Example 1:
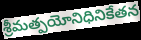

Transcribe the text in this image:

శ్రీమత్పయోనిధినికేతన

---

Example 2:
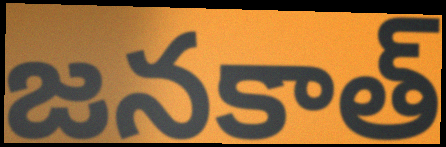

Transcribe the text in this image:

జనకాత్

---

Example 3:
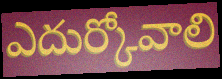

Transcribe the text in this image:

ఎదుర్కోవాలి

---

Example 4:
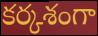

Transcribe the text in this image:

కర్కశంగా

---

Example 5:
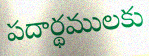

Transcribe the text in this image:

పదార్థములకు